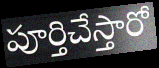
పూర్తిచేస్తారో